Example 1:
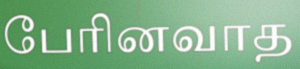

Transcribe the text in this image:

பேரினவாத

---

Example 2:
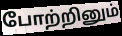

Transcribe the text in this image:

போற்றினும்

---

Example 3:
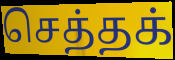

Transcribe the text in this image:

செத்தக்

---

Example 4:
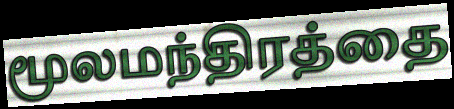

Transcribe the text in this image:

மூலமந்திரத்தை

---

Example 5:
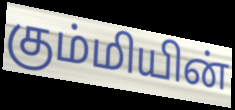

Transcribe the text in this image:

கும்மியின்